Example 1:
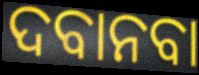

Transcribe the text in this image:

ଦବାନବା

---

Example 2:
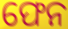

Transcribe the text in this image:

ଫେନ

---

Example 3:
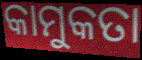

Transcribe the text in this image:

କାମୁକତା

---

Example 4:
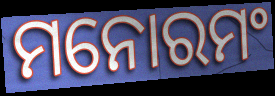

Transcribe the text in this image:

ମନୋରମଂ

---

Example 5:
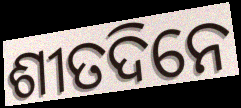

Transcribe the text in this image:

ଶୀତଦିନେ